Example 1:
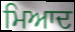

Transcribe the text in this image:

ਮਿਆਦ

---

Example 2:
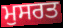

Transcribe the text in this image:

ਮੁਸਰਤ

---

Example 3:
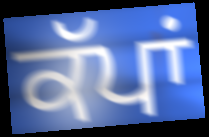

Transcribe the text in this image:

ਕੱਪਾਂ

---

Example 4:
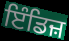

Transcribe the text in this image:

ਇੰਡਿਜ਼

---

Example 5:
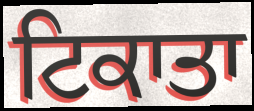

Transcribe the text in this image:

ਟਿਕਾਤਾ